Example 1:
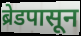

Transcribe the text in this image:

ब्रेडपासून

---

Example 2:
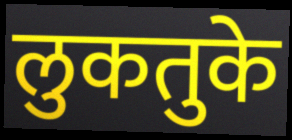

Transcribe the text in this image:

लुकतुके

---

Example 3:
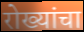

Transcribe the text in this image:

रोख्यांचा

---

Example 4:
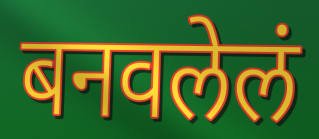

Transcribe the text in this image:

बनवलेलं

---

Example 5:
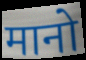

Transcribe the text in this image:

मानो